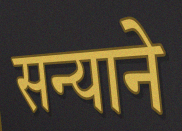
सन्याने